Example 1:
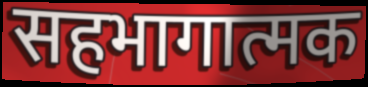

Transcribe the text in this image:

सहभागात्मक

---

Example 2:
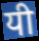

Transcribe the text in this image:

यी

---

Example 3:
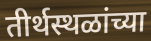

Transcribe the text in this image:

तीर्थस्थळांच्या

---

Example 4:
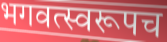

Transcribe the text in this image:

भगवत्स्वरूपच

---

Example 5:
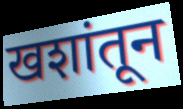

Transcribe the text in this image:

खशांतून